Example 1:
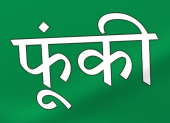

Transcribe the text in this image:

फूंकी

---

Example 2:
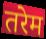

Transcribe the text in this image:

तरेम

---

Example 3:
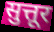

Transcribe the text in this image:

सुत्तूर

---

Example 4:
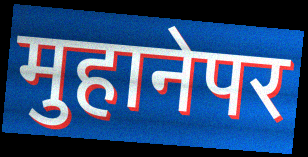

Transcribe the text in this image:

मुहानेपर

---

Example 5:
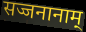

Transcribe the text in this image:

सज्जनानाम्